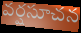
వర్షసూచన